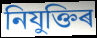
নিযুক্তিৰ